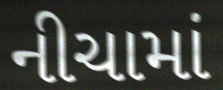
નીચામાં